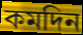
কমদিন